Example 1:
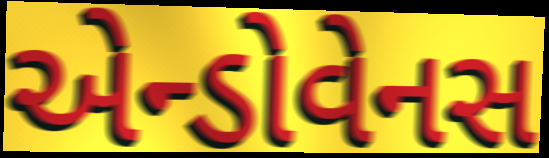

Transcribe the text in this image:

એન્ડોવેનસ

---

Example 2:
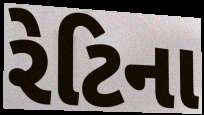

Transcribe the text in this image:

રેટિના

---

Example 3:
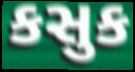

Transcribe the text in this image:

કસુક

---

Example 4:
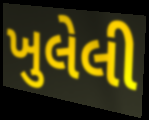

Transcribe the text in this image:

ખુલેલી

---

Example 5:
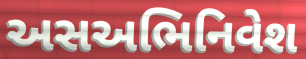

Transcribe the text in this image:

અસઅભિનિવેશ